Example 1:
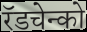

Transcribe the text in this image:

रॅडचेन्को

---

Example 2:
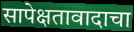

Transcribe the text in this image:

सापेक्षतावादाचा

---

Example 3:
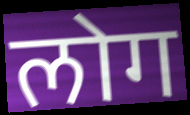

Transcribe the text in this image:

लोग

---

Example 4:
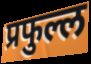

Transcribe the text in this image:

प्रफुल्ल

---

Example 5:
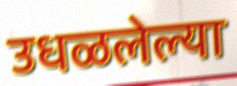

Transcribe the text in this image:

उधळलेल्या